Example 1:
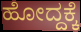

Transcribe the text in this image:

ಹೋದ್ದಕ್ಕೆ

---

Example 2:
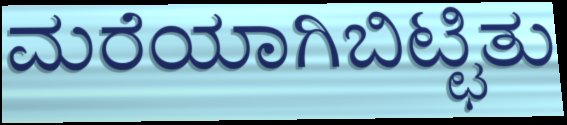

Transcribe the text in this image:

ಮರೆಯಾಗಿಬಿಟ್ಟಿತು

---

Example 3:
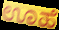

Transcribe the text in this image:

ಊಹೆ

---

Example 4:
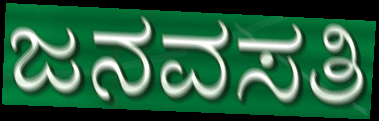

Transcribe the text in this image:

ಜನವಸತಿ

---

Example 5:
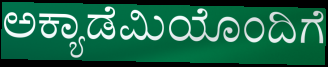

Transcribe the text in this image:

ಅಕ್ಯಾಡೆಮಿಯೊಂದಿಗೆ